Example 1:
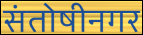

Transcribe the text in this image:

संतोषीनगर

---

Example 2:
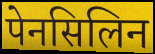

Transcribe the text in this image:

पेनसिलिन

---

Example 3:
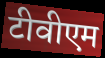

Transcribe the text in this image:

टीवीएम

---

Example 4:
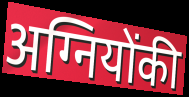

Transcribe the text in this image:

अग्नियोंकी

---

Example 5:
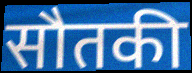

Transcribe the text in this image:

सौतकी